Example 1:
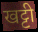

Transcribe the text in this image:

खट्टी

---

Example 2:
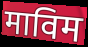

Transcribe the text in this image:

माविम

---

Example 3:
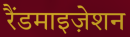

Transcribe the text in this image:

रैंडमाइज़ेशन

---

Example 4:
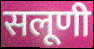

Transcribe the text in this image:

सलूणी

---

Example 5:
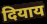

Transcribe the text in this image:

दियाय